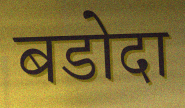
बडोदा